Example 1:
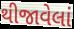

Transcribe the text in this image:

થીજાવેલાં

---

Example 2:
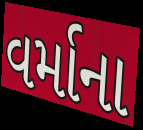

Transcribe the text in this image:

વર્માના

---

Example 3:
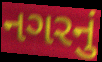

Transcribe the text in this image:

નગરનું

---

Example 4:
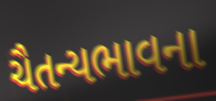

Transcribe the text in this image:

ચૈતન્યભાવના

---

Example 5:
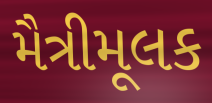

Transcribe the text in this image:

મૈત્રીમૂલક